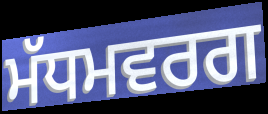
ਮੱਧਮਵਰਗ